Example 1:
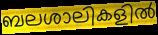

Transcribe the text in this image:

ബലശാലികളിൽ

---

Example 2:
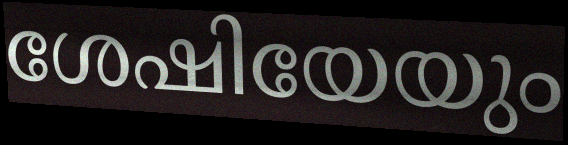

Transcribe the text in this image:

ശേഷിയേയും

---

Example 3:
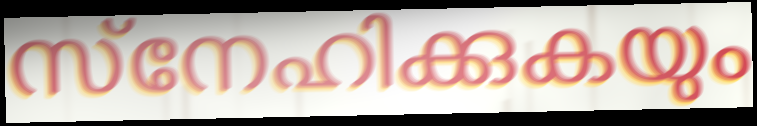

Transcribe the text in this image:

സ്‌നേഹിക്കുകയും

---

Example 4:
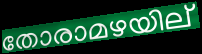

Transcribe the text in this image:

തോരാമഴയില്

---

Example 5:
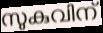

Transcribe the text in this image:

സുകുവിന്